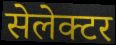
सेलेक्टर